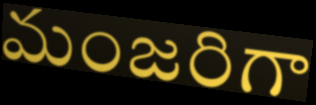
మంజరిగా